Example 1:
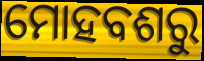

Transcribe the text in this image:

ମୋହବଶରୁ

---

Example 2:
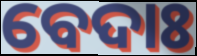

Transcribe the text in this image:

ବେଦାଃ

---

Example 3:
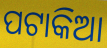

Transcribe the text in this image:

ପଟାକିଆ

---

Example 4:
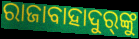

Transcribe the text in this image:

ରାଜାବାହାଦୁର୍‍ଙ୍କୁ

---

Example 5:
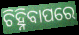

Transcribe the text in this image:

ଚିହ୍ନିବାପରେ